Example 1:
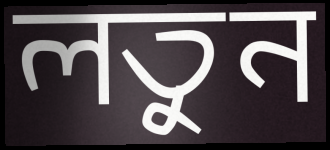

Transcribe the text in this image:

লতুন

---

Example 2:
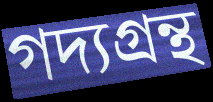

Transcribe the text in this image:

গদ্যগ্রন্থ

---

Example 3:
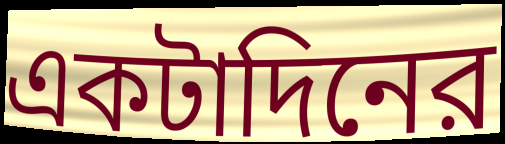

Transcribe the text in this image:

একটাদিনের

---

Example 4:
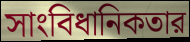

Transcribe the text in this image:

সাংবিধানিকতার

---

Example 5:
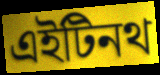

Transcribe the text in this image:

এইটিনথ